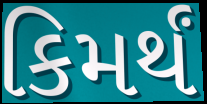
કિમર્થં